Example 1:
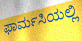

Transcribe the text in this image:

ಫಾರ್ಮಸಿಯಲ್ಲಿ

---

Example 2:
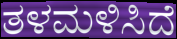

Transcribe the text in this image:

ತಳಮಳಿಸಿದೆ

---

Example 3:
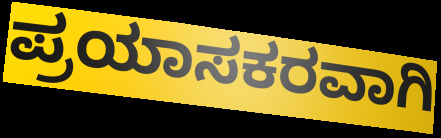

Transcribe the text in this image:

ಪ್ರಯಾಸಕರವಾಗಿ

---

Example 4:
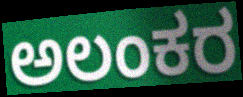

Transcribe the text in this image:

ಅಲಂಕರ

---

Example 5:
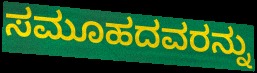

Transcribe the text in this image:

ಸಮೂಹದವರನ್ನು